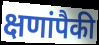
क्षणांपैकी